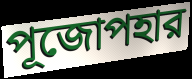
পূজোপহার